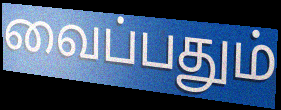
வைப்பதும்